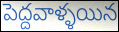
పెద్దవాళ్ళయిన